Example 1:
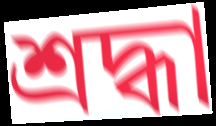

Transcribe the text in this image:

শ্রদ্ধা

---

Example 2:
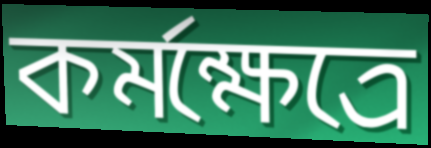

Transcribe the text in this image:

কর্মক্ষেত্রে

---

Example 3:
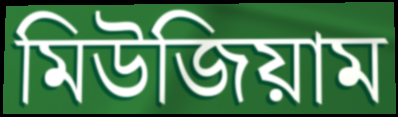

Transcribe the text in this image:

মিউজিয়াম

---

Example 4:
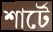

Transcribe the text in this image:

শার্টে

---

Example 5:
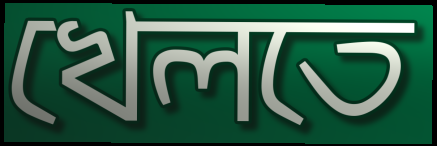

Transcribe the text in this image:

খেলতে